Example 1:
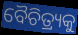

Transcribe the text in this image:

ବୈଚିତ୍ର୍ୟକୁ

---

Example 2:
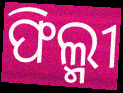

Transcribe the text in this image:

ଫିଲ୍ମୀ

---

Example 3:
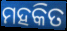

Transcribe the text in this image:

ମହକିତ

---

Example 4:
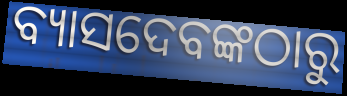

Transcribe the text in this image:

ବ୍ୟାସଦେବଙ୍କଠାରୁ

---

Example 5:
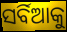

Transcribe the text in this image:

ସର୍ବିଆକୁ